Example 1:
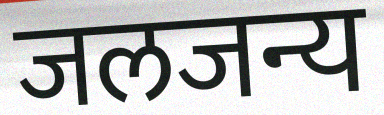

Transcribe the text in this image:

जलजन्य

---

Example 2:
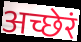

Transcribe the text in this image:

अच्छेरं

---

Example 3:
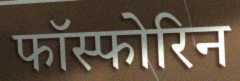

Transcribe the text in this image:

फॉस्फोरिन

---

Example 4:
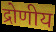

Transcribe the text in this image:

द्रोणीय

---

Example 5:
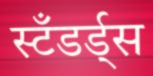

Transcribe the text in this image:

स्टँडर्ड्स